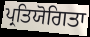
ਪ੍ਰਤਿਯੋਗਿਤਾ